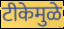
टीकेमुळे